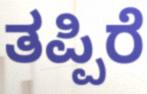
ತಪ್ಪಿರೆ